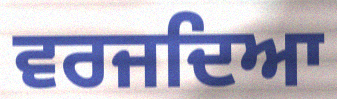
ਵਰਜਦਿਆ